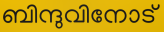
ബിന്ദുവിനോട്